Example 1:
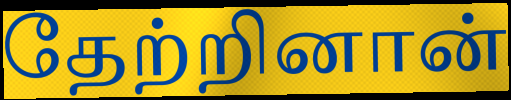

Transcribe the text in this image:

தேற்றினான்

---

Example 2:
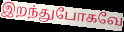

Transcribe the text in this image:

இறந்துபோகவே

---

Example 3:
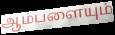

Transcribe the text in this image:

ஆம்பளையும்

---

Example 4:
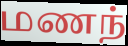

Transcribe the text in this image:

மணந்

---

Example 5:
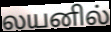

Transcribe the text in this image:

லயனில்